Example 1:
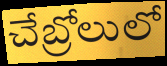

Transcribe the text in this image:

చేబ్రోలులో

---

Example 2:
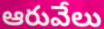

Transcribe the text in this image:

ఆరువేలు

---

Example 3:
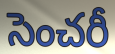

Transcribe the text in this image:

సెంచరీ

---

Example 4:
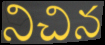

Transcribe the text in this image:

నిచిన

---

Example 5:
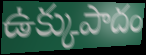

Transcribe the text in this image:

ఉక్కుపాదం